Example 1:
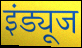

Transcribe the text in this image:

इंड्यूज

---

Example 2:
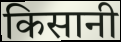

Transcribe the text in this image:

किसानी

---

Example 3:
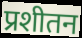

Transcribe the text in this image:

प्रशीतन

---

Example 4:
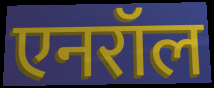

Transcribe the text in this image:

एनरॉल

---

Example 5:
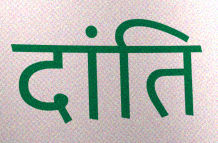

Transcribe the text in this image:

दांति